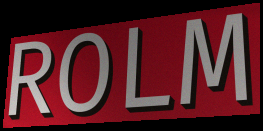
ROLM